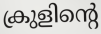
ക്രുളിന്റെ